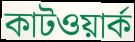
কাটওয়ার্ক